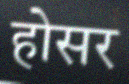
होसर